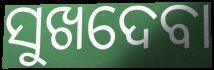
ସୁଖଦେବା